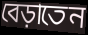
বেড়াতেন